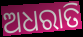
ଅଧରାତି